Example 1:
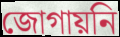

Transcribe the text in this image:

জোগায়নি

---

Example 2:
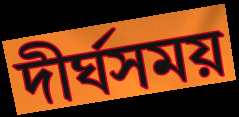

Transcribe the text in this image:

দীর্ঘসময়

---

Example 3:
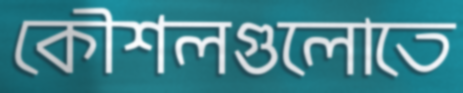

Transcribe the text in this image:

কৌশলগুলোতে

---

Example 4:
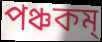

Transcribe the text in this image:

পঞ্চকম্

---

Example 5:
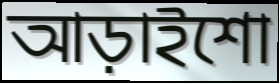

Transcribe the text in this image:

আড়াইশো